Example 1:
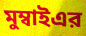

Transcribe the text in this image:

মুম্বাইএর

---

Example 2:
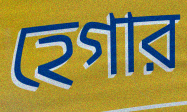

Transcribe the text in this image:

হেগার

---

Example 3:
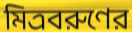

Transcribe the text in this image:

মিত্রবরুণের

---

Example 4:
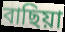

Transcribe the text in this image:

বাছিয়া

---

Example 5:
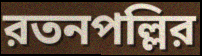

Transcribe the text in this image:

রতনপল্লির